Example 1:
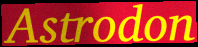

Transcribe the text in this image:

Astrodon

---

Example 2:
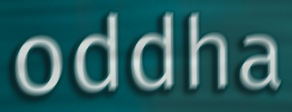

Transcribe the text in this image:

oddha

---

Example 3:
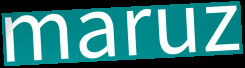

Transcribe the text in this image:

maruz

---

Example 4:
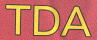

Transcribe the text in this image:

TDA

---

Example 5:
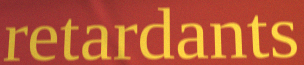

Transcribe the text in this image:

retardants